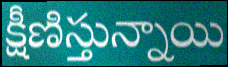
క్షీణిస్తున్నాయి